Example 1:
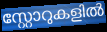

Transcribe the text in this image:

സ്റ്റോറുകളിൽ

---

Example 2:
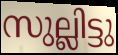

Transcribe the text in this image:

സുല്ലിട്ടു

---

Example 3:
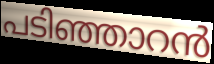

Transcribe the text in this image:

പടിഞ്ഞാറൻ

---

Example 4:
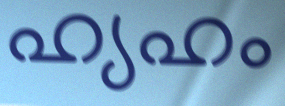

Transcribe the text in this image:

ഹ്യഹം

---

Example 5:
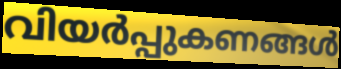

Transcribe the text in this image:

വിയർപ്പുകണങ്ങൾ